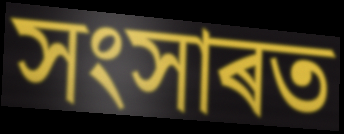
সংসাৰত